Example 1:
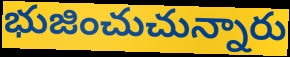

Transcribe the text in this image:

భుజించుచున్నారు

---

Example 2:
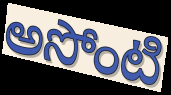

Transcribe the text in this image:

అసోంటి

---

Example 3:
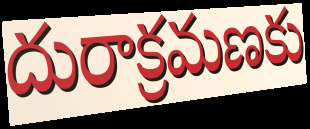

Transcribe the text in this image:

దురాక్రమణకు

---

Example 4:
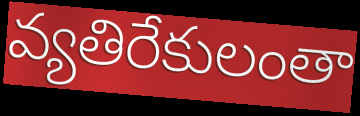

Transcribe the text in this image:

వ్యతిరేకులంతా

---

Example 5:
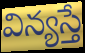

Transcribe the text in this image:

విన్యస్తే